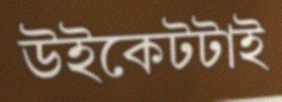
উইকেটটাই